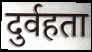
दुर्वहता